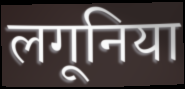
लगूनिया